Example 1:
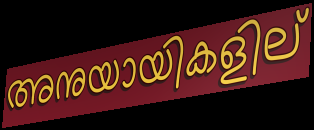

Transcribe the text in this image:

അനുയായികളില്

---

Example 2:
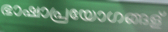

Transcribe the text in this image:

ഭാഷാപ്രയോഗങ്ങള്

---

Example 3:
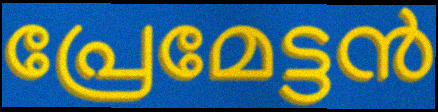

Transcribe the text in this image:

പ്രേമേട്ടൻ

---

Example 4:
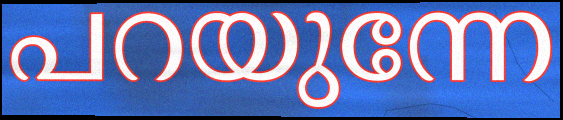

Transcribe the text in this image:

പറയുന്നേ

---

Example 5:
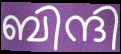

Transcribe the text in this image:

ബിന്ദി